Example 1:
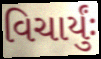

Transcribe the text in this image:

વિચાર્યુંઃ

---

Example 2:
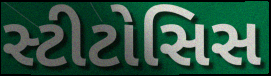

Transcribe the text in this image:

સ્ટીટોસિસ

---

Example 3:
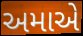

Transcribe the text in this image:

અમાએ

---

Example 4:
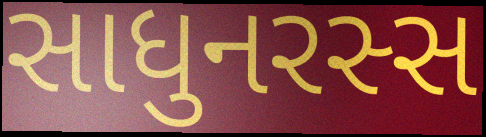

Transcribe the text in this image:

સાધુનરસ્સ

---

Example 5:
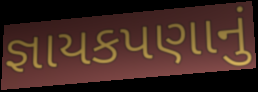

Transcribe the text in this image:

જ્ઞાયકપણાનું